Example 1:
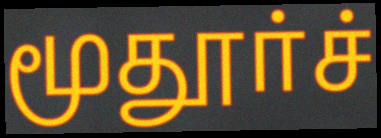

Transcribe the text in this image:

மூதூர்ச்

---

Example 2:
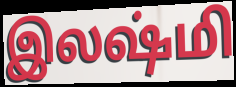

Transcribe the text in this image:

இலஷ்மி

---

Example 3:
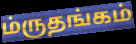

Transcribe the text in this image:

ம்ருதங்கம்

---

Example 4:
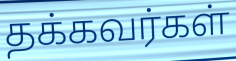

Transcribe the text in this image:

தக்கவர்கள்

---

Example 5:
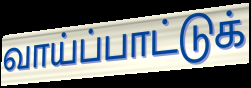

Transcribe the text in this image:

வாய்ப்பாட்டுக்